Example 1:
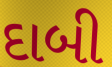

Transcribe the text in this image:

દાબી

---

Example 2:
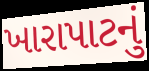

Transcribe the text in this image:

ખારાપાટનું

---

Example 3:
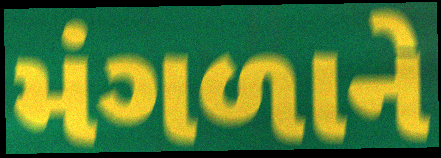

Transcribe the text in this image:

મંગળાને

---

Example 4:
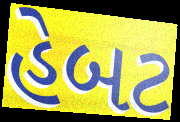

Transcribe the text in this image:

હેબટ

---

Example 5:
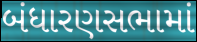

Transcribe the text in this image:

બંધારણસભામાં